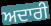
ਅਦਾਰੀ